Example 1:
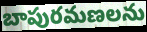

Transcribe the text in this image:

బాపురమణలను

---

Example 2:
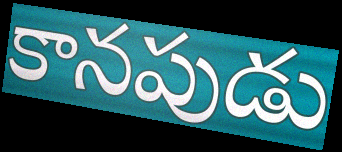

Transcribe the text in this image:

కానపుడు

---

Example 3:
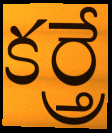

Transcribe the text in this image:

కర్త్రే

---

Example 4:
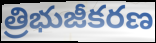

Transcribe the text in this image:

త్రిభుజీకరణ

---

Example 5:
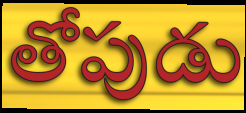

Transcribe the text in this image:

తోపుడు